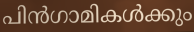
പിൻഗാമികൾക്കും